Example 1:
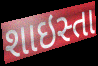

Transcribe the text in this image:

શાઇસ્તા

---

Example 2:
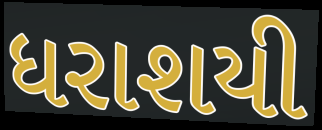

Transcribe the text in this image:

ધરાશયી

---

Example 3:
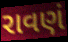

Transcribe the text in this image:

રાવણં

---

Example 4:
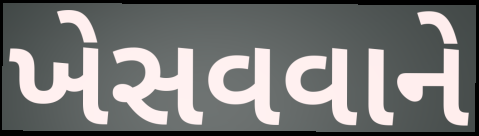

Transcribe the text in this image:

ખેસવવાને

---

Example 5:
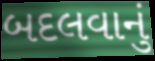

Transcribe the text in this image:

બદલવાનું